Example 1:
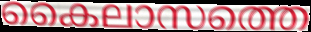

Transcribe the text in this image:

കൈലാസത്തെ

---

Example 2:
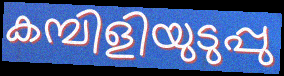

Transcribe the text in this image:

കമ്പിളിയുടുപ്പു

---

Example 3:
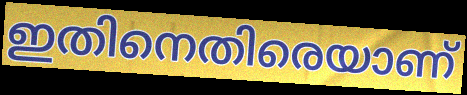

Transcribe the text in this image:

ഇതിനെതിരെയാണ്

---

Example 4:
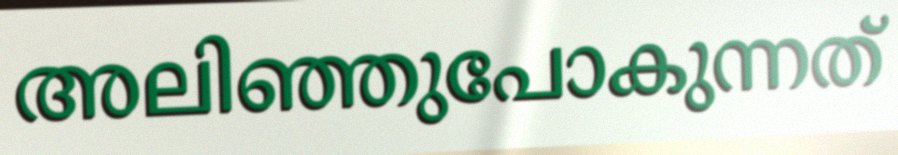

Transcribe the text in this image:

അലിഞ്ഞുപോകുന്നത്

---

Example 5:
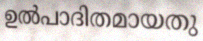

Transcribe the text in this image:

ഉൽപാദിതമായതു